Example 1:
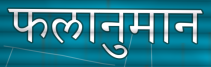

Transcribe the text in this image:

फलानुमान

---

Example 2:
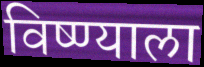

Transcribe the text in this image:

विष्ण्याला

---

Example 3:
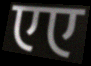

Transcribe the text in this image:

एए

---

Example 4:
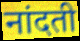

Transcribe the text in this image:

नांदती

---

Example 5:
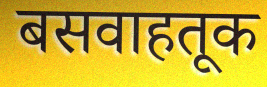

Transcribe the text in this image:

बसवाहतूक